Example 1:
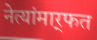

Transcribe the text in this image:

नेत्यांमार्फत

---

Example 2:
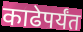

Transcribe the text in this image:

काढेपर्यंत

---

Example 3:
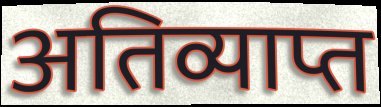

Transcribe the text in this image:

अतिव्याप्त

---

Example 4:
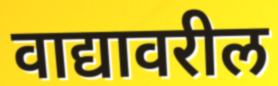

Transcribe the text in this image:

वाद्यावरील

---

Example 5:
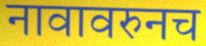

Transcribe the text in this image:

नावावरुनच